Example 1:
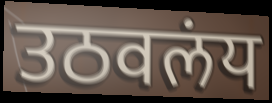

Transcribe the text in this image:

उठवलंय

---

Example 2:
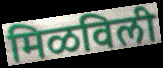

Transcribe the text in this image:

मिळविली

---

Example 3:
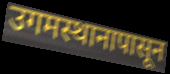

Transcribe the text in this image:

उगमस्थानापासून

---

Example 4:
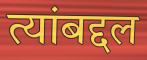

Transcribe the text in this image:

त्यांबद्दल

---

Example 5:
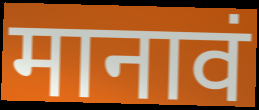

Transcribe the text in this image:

मानावं